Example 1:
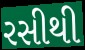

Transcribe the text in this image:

રસીથી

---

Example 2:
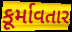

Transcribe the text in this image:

કૂર્માવતાર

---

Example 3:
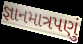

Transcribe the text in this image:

જ્ઞાનમાત્રપણું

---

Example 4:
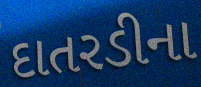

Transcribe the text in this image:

દાતરડીના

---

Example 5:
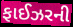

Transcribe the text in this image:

ફાઈઝરની